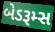
બેડરૂમ્સ